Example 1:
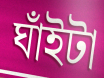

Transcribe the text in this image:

ঘাঁইটা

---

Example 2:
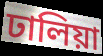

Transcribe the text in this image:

ঢালিয়া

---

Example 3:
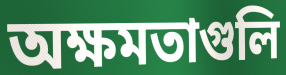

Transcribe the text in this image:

অক্ষমতাগুলি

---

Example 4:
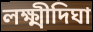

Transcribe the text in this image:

লক্ষ্মীদিঘা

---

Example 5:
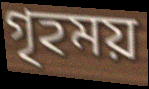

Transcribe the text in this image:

গৃহময়